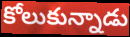
కోలుకున్నాడు